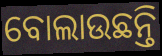
ବୋଲାଉଛନ୍ତି